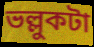
ভল্লুকটা